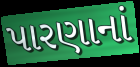
પારણાનાં